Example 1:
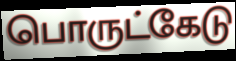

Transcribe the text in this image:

பொருட்கேடு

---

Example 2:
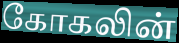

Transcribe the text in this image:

கோகலின்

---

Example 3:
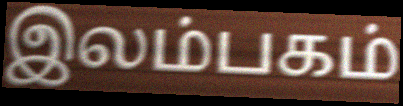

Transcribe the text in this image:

இலம்பகம்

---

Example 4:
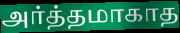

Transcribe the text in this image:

அர்த்தமாகாத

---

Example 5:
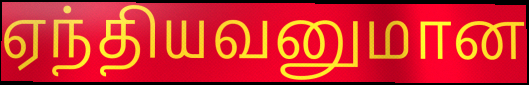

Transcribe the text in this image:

ஏந்தியவனுமான